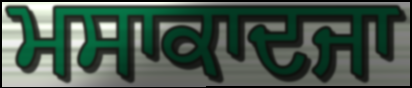
ਮਸਾਕਾਦਜਾ